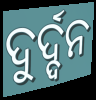
ଦୁର୍ଦ୍ଦନ